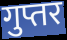
गुप्तर